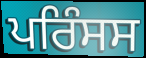
ਪਰਿੰਸਸ